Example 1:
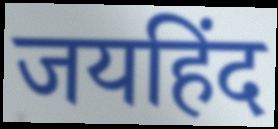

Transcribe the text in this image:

जयहिंद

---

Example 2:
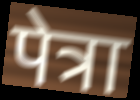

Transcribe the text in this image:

पेत्रा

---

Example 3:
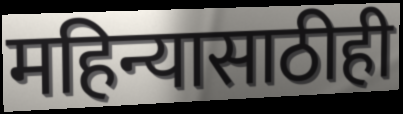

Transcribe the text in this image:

महिन्यासाठीही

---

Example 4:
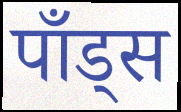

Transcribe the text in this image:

पाँड्स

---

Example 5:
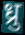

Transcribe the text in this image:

ध्रु